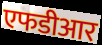
एफडीआर